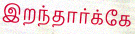
இறந்தார்க்கே